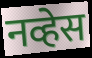
नव्हेस